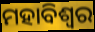
ମହାବିଶ୍ଵର